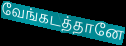
வேங்கடத்தானே